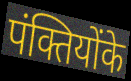
पंक्तियोंके